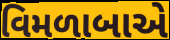
વિમળાબાએ